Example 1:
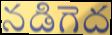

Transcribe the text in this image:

నడిగెద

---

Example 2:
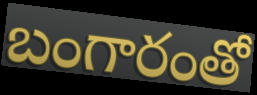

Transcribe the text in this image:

బంగారంతో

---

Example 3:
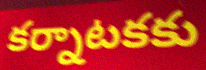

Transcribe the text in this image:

కర్నాటకకు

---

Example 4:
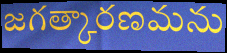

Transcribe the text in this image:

జగత్కారణమను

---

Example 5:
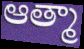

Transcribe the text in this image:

ఆత్మా